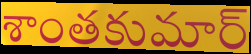
శాంతకుమార్